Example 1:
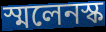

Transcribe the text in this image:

স্মলেনস্ক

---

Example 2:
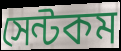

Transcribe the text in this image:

সেন্টকম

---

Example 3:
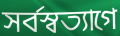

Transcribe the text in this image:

সর্বস্বত্যাগে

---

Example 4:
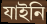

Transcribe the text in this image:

যাইনি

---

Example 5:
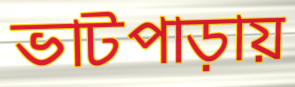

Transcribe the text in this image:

ভাটপাড়ায়